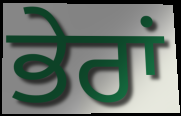
ਭੇਰਾਂ